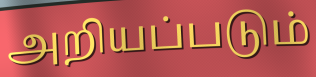
அறியப்படும்